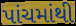
પાંચમાંથી